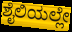
ಶೈಲಿಯಲ್ಲೇ